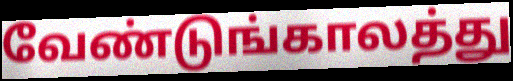
வேண்டுங்காலத்து